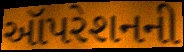
ઑપરેશનની